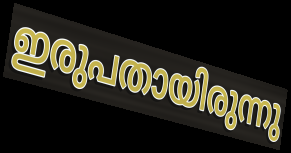
ഇരുപതായിരുന്നു